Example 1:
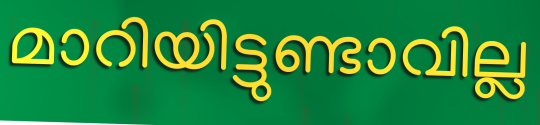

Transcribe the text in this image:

മാറിയിട്ടുണ്ടാവില്ല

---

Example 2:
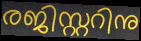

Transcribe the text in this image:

രജിസ്റ്ററിനു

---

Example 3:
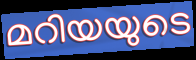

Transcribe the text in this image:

മറിയയുടെ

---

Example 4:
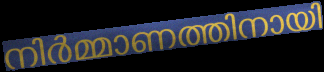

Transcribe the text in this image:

നിർമ്മാണത്തിനായി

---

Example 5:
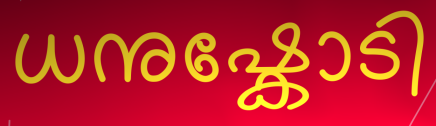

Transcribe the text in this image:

ധനുഷ്കോടി